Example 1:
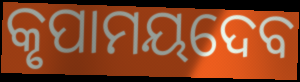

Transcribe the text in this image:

କୃପାମୟଦେବ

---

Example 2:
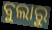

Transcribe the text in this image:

ବୁଲାରୁ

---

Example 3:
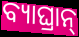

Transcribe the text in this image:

ବ୍ୟାଘ୍ରାନ୍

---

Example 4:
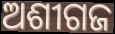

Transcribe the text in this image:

ଅଶୀଗଜ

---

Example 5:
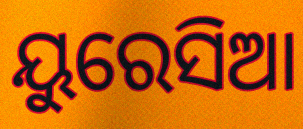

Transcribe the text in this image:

ୟୁରେସିଆ